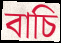
বাচি